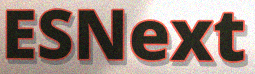
ESNext